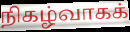
நிகழ்வாகக்